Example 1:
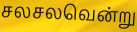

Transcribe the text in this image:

சலசலவென்று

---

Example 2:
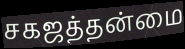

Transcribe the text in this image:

சகஜத்தன்மை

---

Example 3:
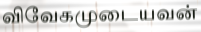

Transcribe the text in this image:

விவேகமுடையவன்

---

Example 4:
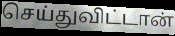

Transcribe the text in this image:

செய்துவிட்டான்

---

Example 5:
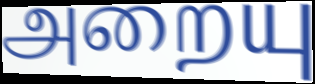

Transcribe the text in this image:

அறையு